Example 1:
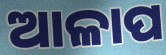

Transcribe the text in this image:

ଆଳାପ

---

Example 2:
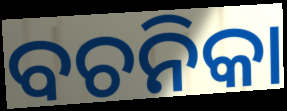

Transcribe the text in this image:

ବଚନିକା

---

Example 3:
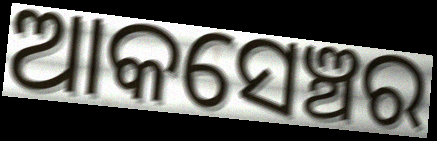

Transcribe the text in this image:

ଆକସେଞ୍ଚର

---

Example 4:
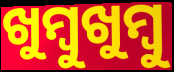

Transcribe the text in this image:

ଖୁମ୍ୱୁଖୁମ୍ବୁ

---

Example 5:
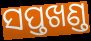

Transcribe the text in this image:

ସପ୍ତଖଣ୍ଡ